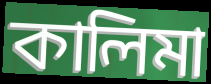
কালিমা